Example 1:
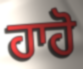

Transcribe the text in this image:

ਹਾਹੋ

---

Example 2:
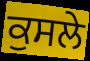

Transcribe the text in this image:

ਕੁਸਲੇ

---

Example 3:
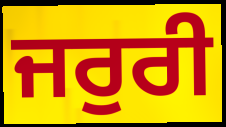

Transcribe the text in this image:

ਜਰੁਰੀ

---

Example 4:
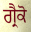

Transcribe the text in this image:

ਗ੍ਰੈਕੋ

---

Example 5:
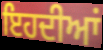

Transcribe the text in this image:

ਇਹਦੀਆਂ